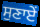
ਸੁਣਾਏਂ